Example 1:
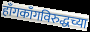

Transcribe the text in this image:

हाँगकाँगविरुद्धच्या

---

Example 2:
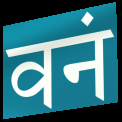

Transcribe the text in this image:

वनं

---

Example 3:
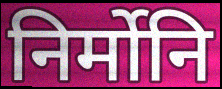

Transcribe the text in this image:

निर्मोनि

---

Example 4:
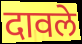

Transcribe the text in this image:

दावले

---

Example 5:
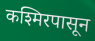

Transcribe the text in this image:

कश्मिरपासून